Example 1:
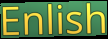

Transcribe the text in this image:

Enlish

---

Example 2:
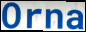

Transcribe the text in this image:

Orna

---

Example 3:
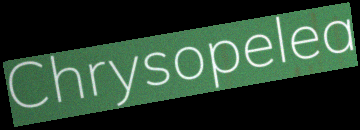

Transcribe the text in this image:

Chrysopelea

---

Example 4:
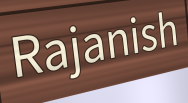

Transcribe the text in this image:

Rajanish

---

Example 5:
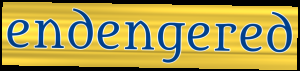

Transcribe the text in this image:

endengered